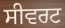
ਸੀਵਰਟ